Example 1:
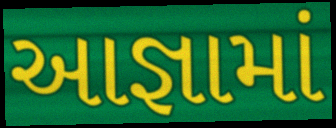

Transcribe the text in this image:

આજ્ઞામાં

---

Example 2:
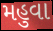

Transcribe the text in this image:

મહુવા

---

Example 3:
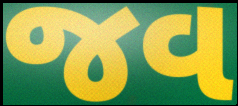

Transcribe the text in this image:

જવ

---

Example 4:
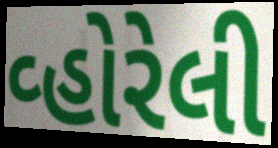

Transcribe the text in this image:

વ્હોરેલી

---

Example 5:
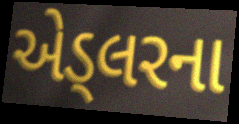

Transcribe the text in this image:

એડ્લરના